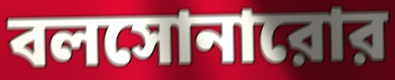
বলসোনারোর